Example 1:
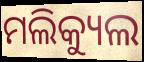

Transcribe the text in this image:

ମଲିକ୍ୟୁଲ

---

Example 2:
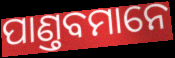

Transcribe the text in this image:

ପାଣ୍ତବମାନେ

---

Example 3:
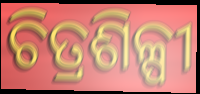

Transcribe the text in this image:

ଚିତ୍ରଶିଳ୍ପୀ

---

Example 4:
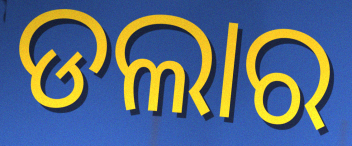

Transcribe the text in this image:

ଡଲାର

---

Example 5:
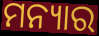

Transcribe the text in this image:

ମନ୍ୟାର